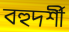
বহুদর্শী